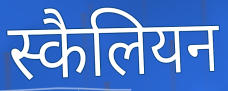
स्कैलियन